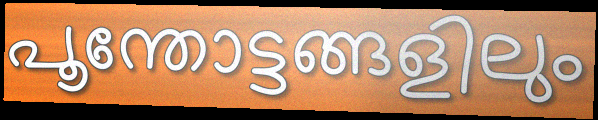
പൂന്തോട്ടങ്ങളിലും